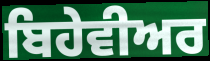
ਬਿਹੇਵੀਅਰ